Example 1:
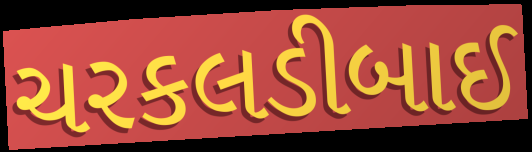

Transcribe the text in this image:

ચરકલડીબાઈ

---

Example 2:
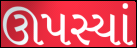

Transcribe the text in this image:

ઊપસ્યાં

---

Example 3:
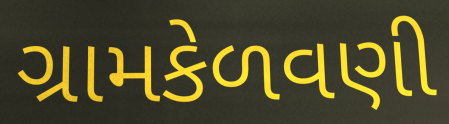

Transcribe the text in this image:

ગ્રામકેળવણી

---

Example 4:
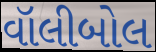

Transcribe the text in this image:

વૉલીબોલ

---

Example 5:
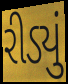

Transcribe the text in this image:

રીડ્યું